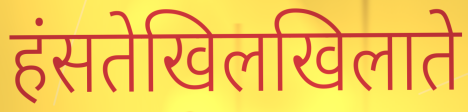
हंसतेखिलखिलाते